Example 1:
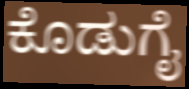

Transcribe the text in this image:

ಕೊಡುಗೈ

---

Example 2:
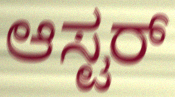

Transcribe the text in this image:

ಆಸ್ಟರ್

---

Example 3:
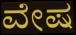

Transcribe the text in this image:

ವೇಷ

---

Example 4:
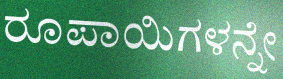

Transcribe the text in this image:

ರೂಪಾಯಿಗಳನ್ನೇ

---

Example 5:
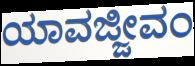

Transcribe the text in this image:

ಯಾವಜ್ಜೀವಂ